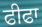
ਫੀਫਾ